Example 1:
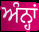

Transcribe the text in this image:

ਅੰਨ੍ਹਾਂ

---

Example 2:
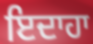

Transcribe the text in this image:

ਇਦਾਹਾ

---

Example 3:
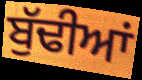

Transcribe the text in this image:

ਬੁੱਢੀਆਂ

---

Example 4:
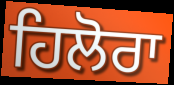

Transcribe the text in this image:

ਹਿਲੋਰਾ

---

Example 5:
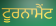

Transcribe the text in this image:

ਟੂਰਨਾਮੈਂਟ